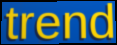
trend